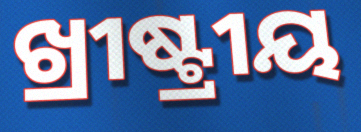
ଖ୍ରୀଷ୍ଟ୍ରୀୟ